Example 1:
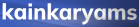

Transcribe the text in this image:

kainkaryams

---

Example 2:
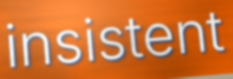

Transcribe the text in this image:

insistent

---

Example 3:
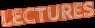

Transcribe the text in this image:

LECTURES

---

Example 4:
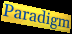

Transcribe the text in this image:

Paradigm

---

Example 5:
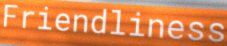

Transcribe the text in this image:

Friendliness